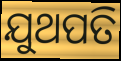
ଯୁଥପତି